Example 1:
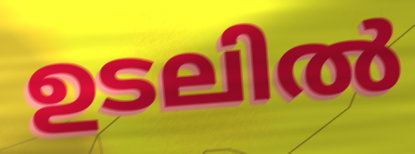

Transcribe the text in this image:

ഉടലിൽ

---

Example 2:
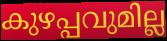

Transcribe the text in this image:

കുഴപ്പവുമില്ല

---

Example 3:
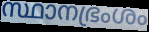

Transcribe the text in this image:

സ്ഥാനഭ്രംശം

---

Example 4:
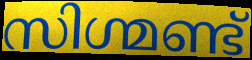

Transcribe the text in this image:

സിഗ്മണ്ട്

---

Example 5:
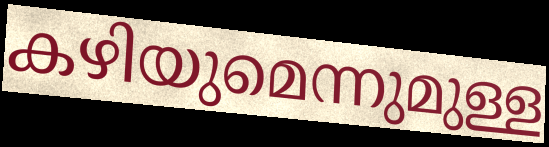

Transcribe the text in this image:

കഴിയുമെന്നുമുള്ള